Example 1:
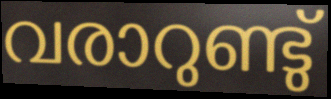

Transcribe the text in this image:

വരാറുണ്ടു്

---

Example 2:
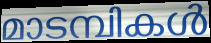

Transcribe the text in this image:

മാടമ്പികൾ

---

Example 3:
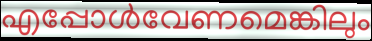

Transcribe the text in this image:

എപ്പോൾവേണമെങ്കിലും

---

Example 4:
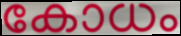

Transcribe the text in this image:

കോധം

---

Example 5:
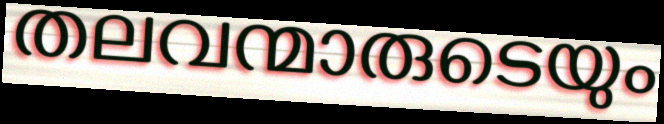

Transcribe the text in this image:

തലവന്മാരുടെയും